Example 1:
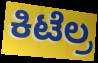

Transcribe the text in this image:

ಕಿಟೆಲ್ರ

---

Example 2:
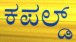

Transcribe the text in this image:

ಕಪಲ್ಡ್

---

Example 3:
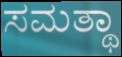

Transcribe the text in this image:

ಸಮತ್ಥಾ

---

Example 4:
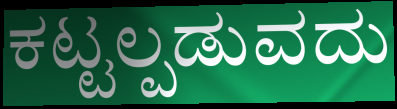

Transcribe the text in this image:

ಕಟ್ಟಲ್ಪಡುವದು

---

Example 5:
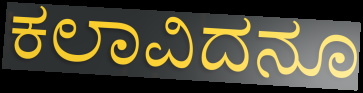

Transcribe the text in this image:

ಕಲಾವಿದನೂ